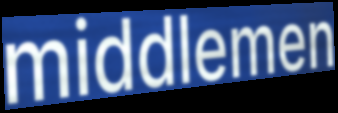
middlemen